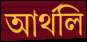
আর্থলি